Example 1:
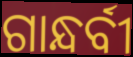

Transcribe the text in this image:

ଗାନ୍ଧର୍ବୀ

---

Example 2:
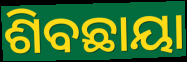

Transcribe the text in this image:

ଶିବଛାୟା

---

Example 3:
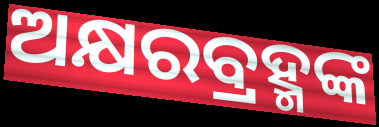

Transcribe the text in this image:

ଅକ୍ଷରବ୍ରହ୍ମଙ୍କ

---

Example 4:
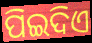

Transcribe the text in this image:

ପିଇଦିଏ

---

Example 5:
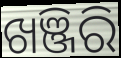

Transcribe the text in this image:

ଖଞ୍ଜିରି